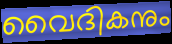
വൈദികനും